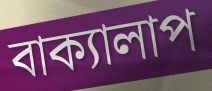
বাক্যালাপ